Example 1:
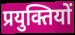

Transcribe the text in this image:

प्रयुक्तियों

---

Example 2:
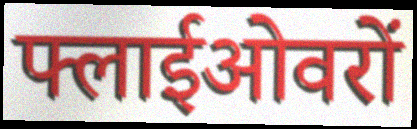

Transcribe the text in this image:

फ्लाईओवरों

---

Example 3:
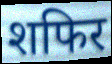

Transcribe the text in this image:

शफिर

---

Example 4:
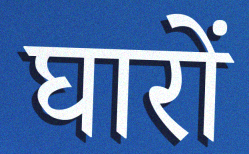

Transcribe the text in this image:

घारों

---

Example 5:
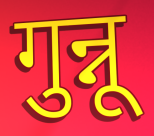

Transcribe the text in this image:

गुन्नू